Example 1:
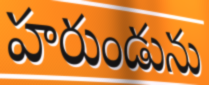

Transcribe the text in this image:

హరుండును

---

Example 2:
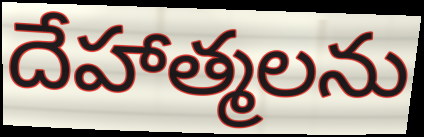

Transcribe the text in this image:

దేహాత్మలను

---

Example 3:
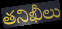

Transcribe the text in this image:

తనిఖీలు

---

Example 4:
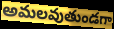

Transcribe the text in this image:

అమలవుతుండగా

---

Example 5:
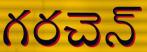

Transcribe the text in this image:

గరచెన్